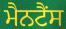
ਮੈਨਟੈਂਸ